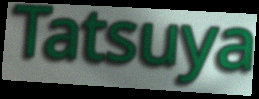
Tatsuya